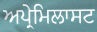
ਅਪ੍ਰੇਮਿਲਾਸਟ